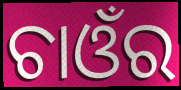
ଚାଓଁର